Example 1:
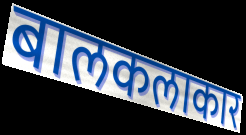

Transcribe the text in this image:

बालकलाकार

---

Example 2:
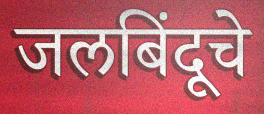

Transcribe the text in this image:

जलबिंदूचे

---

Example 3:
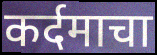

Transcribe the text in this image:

कर्दमाचा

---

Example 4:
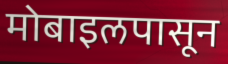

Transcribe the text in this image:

मोबाइलपासून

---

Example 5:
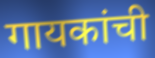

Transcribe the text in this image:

गायकांची